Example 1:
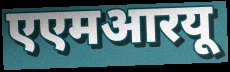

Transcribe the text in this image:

एएमआरयू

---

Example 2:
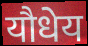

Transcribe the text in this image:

यौधेय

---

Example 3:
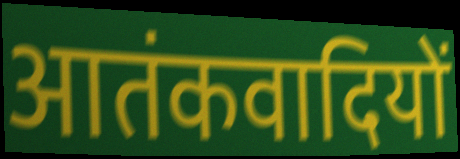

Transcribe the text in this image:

आतंकवादियों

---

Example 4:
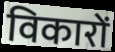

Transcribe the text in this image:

विकारों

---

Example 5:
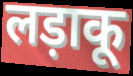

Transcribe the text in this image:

लड़ाकू